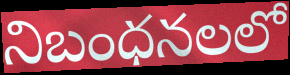
నిబంధనలలో